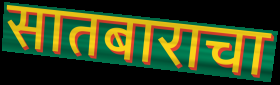
सातबाराचा